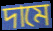
দামে